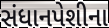
સંધાનપેશીના